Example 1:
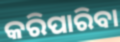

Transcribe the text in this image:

କରିପାରିବା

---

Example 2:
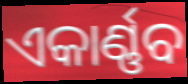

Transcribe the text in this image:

ଏକାର୍ଣ୍ଣବ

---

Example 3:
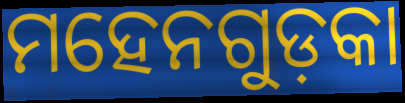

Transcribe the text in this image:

ମହେନଗୁଡ଼କା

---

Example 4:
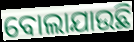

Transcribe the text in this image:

ବୋଲାଯାଉଛି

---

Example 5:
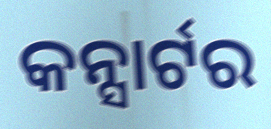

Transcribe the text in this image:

କନ୍ସାର୍ଟର